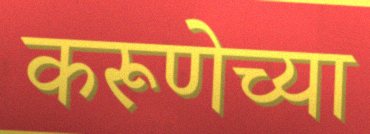
करूणेच्या